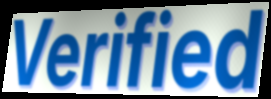
Verified